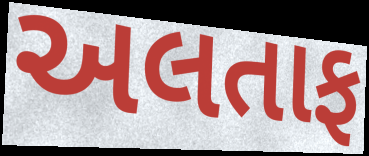
અલતાફ